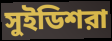
সুইডিশরা